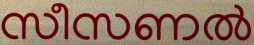
സീസണൽ